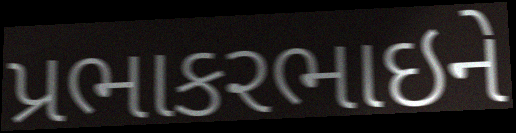
પ્રભાકરભાઇને